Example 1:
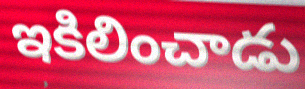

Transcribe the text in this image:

ఇకిలించాడు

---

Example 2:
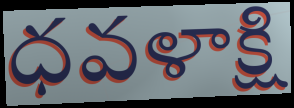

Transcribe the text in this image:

ధవళాక్షి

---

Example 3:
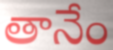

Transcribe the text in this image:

తానేం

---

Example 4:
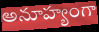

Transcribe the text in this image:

అనూహ్యంగా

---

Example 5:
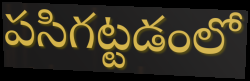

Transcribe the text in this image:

పసిగట్టడంలో